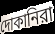
দোকানিরা